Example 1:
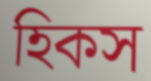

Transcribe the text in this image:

হিকস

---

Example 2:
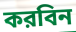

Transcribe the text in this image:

করবিন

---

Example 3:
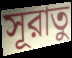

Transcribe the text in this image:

সূরাতু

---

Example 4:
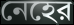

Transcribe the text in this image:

নেহের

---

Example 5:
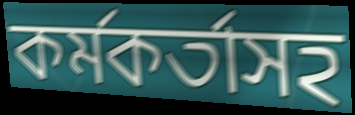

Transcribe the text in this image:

কর্মকর্তাসহ